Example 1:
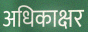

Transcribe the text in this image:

अधिकाक्षर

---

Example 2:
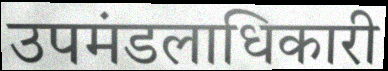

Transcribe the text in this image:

उपमंडलाधिकारी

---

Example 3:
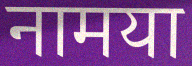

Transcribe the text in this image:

नामया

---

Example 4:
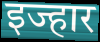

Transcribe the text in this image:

इज्हार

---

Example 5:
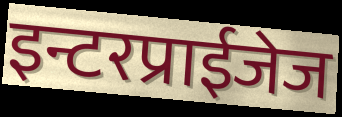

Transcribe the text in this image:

इन्टरप्राईजेज